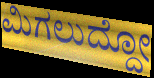
ಮಿಗಲುದ್ದೋ